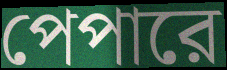
পেপারে